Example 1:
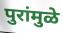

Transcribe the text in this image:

पुरांमुळे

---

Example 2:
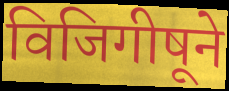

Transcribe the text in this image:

विजिगीषूने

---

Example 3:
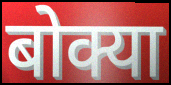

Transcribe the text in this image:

बोक्या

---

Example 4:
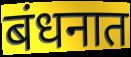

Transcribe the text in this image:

बंधनात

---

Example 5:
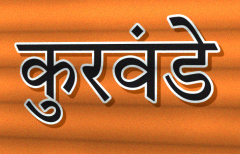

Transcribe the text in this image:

कुरवंडे